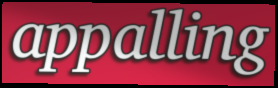
appalling